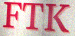
FTK